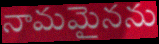
నామమైనను